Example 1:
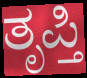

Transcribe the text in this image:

ತೃಪ್ತಿ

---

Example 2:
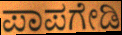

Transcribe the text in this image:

ಪಾಪಗೇಡಿ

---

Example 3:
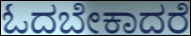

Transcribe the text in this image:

ಓದಬೇಕಾದರೆ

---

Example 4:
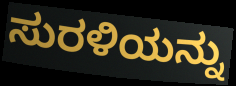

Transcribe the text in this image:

ಸುರಳಿಯನ್ನು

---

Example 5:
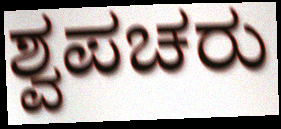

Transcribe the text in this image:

ಶ್ವಪಚರು